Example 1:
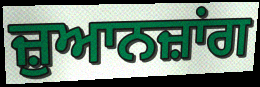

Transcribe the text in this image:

ਜ਼ੁਆਨਜ਼ਾਂਗ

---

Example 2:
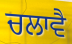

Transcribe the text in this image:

ਚਲਾਵੈ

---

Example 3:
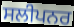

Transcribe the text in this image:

ਸਲੀਪਨਰ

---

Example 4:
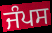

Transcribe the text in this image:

ਜੰਪਸ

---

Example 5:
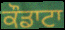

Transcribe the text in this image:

ਕੌਡਾਟਾ